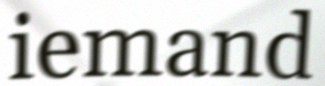
iemand